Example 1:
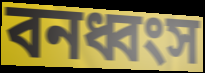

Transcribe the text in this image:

বনধ্বংস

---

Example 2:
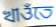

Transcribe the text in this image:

খাওঁতে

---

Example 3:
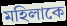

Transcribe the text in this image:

মহিলাকে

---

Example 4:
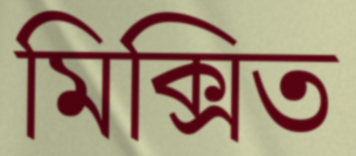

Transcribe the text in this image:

মিক্সিত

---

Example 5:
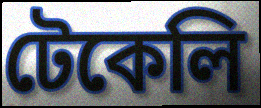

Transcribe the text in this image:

টেকেলি